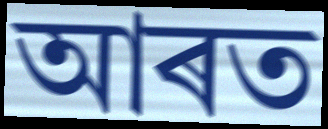
আৰত